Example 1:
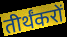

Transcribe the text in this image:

तीर्थंकरों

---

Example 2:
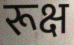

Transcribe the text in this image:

रूक्ष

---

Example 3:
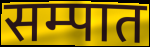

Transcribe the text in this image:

सम्पात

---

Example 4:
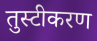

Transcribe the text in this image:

तुस्टीकरण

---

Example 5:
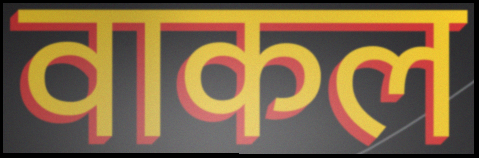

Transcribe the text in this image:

वाकल